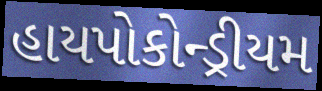
હાયપોકોન્ડ્રીયમ